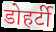
डोहर्टी